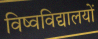
विष्वविद्यालयों